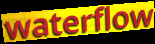
waterflow